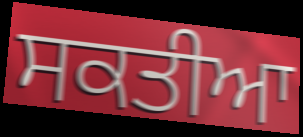
ਸਕਤੀਆ